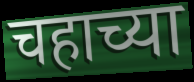
चहाच्या